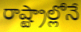
రాష్ట్రాల్లోనే